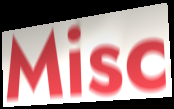
Misc